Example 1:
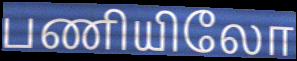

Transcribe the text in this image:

பணியிலோ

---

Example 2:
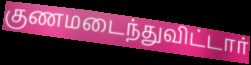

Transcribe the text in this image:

குணமடைந்துவிட்டார்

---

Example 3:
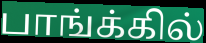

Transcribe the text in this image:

பாங்க்கில்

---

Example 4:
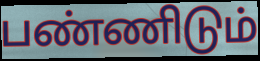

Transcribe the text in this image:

பண்ணிடும்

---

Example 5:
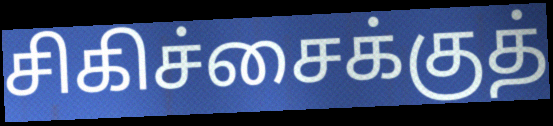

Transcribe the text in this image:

சிகிச்சைக்குத்